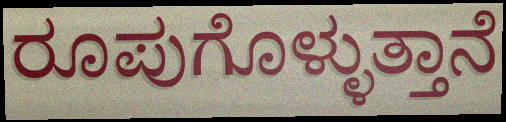
ರೂಪುಗೊಳ್ಳುತ್ತಾನೆ